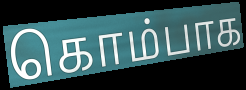
கொம்பாக